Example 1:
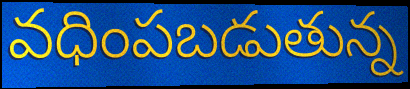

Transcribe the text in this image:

వధింపబడుతున్న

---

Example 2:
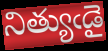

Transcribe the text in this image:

నిత్యుఁడై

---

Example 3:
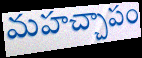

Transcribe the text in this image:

మహచ్చాపం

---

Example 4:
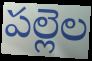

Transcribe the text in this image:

పల్లెల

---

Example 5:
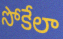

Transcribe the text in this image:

సోకేలా